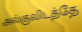
அல்குலிடத்தே